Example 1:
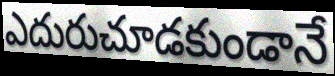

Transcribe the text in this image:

ఎదురుచూడకుండానే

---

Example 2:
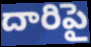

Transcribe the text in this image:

దారిపై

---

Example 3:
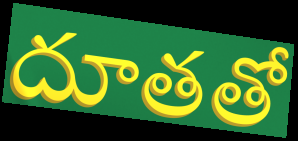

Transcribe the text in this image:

దూతతో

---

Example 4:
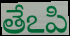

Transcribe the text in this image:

తేఽపి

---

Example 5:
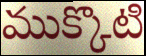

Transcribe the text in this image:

ముక్కొటి